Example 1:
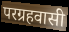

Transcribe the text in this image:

परग्रहवासी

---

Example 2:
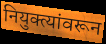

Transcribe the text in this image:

नियुक्त्यांवरून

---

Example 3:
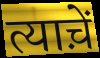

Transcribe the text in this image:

त्याच़ें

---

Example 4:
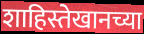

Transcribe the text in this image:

शाहिस्तेखानच्या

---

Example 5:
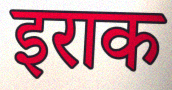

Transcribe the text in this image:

इराक